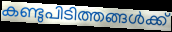
കണ്ടുപിടിത്തങ്ങൾക്ക്